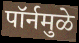
पॉर्नमुळे